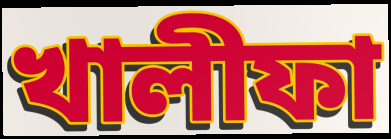
খালীফা